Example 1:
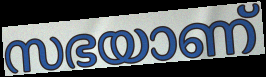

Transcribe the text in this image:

സഭയാണ്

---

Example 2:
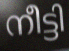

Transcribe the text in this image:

നീട്ടി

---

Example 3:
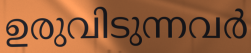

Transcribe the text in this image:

ഉരുവിടുന്നവർ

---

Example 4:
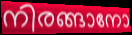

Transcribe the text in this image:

നിരങ്ങാനോ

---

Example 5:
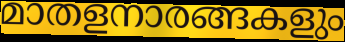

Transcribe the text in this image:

മാതളനാരങ്ങകളും